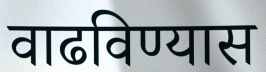
वाढविण्यास